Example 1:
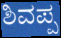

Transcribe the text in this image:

ಶಿವಪ್ಪ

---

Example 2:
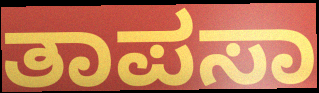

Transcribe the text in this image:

ತಾಪಸಾ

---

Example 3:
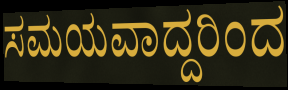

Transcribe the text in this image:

ಸಮಯವಾದ್ದರಿಂದ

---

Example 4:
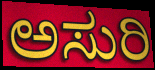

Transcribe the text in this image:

ಅಸುರಿ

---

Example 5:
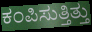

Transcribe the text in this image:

ಕಂಪಿಸುತ್ತಿತ್ತು